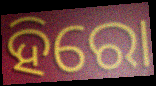
ହିରୋ